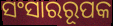
ସଂସାରରୂପକ